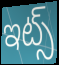
ఇట్స్